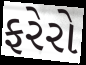
ફરેરો